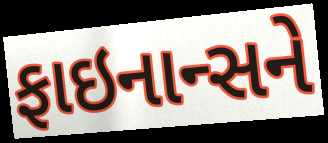
ફાઇનાન્સને